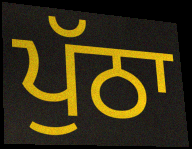
ਪੁੱਠਾ